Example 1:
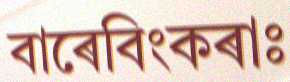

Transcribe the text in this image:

বাৰেবিংকৰাঃ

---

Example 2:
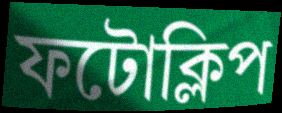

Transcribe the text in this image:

ফটোক্লিপ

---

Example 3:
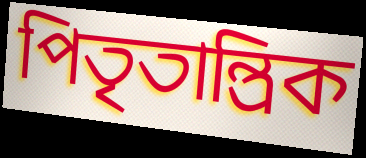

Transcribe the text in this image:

পিতৃতান্ত্ৰিক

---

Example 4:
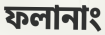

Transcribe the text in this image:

ফলানাং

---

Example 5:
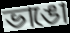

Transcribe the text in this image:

ভাঙো